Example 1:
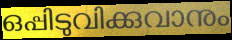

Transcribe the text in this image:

ഒപ്പിടുവിക്കുവാനും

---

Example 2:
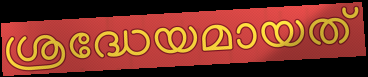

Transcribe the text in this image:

ശ്രദ്ധേയമായത്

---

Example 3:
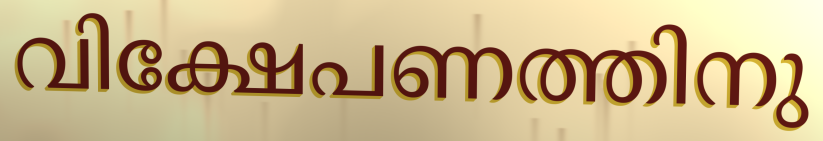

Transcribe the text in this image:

വിക്ഷേപണത്തിനു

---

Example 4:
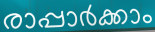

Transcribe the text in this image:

രാപ്പാർക്കാം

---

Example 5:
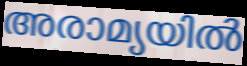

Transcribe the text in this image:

അരാമ്യയിൽ